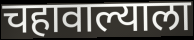
चहावाल्याला